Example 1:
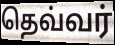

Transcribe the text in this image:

தெவ்வர்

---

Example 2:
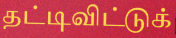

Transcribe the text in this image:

தட்டிவிட்டுக்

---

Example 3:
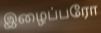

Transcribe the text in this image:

இழைப்பரோ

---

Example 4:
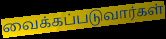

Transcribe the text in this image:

வைக்கப்படுவார்கள்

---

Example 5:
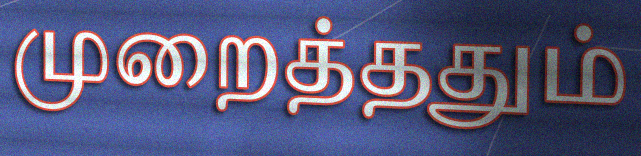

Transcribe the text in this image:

முறைத்ததும்